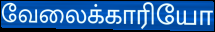
வேலைக்காரியோ